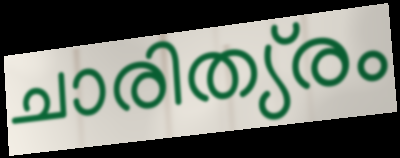
ചാരിത്യ്രം